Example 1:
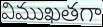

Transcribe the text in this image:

విముఖతగా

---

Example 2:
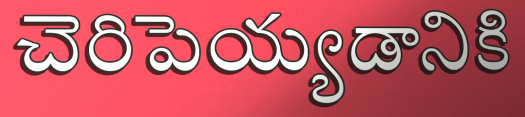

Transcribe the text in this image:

చెరిపెయ్యడానికి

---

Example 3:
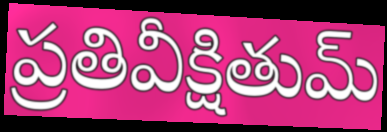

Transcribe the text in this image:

ప్రతివీక్షితుమ్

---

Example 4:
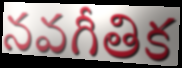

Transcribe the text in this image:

నవగీతిక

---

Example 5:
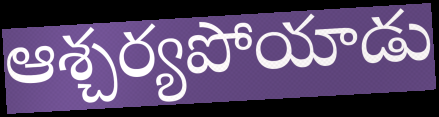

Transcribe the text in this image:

ఆశ్చర్యపోయాడు